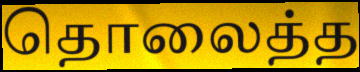
தொலைத்த